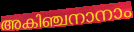
അകിഞ്ചനാനാം